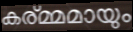
കര്മ്മമായും